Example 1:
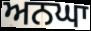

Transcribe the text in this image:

ਅਨਘਾ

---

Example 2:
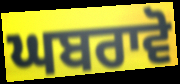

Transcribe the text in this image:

ਘਬਰਾਵੋ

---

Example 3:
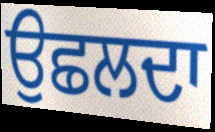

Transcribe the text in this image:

ਉਛਲਦਾ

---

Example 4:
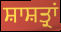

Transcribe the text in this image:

ਸ਼ਾਸ਼ਤ੍ਰਾਂ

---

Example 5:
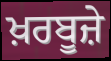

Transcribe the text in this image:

ਖ਼ਰਬੂਜ਼ੇ